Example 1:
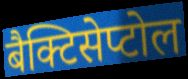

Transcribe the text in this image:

बैक्टिसेप्टोल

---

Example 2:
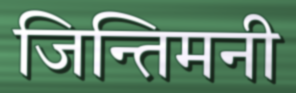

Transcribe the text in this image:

जिन्तिमनी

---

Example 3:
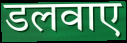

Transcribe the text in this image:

डलवाए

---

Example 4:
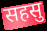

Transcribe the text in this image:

सहसु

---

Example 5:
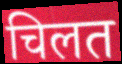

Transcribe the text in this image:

चिलत